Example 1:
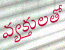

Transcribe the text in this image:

వ్యక్తులతో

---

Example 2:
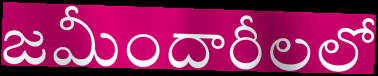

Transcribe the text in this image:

జమీందారీలలో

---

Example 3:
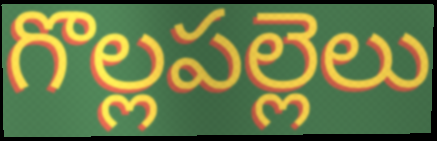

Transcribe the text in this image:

గొల్లపల్లెలు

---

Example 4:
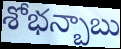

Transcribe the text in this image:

శోభన్బాబు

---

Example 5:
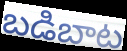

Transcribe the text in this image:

బడిబాట